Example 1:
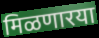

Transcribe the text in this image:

मिळणारया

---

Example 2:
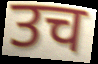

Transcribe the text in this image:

उच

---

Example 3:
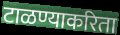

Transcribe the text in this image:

टाळण्याकरिता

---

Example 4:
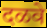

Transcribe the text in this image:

दळवे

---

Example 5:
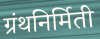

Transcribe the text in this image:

ग्रंथनिर्मिती